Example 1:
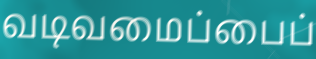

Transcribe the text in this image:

வடிவமைப்பைப்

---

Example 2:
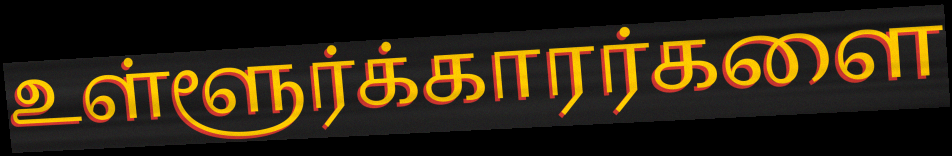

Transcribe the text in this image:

உள்ளூர்க்காரர்களை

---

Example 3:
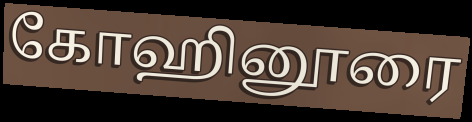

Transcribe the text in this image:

கோஹினூரை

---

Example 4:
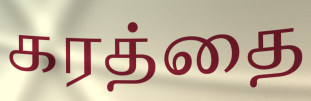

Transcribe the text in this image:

கரத்தை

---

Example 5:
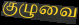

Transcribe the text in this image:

குழுவை